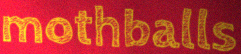
mothballs